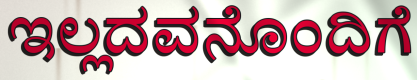
ಇಲ್ಲದವನೊಂದಿಗೆ